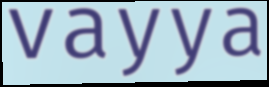
vayya